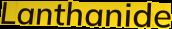
Lanthanide